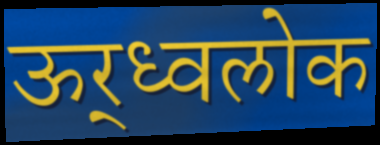
ऊर्ध्वलोक